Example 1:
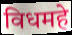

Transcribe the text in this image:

विधमहे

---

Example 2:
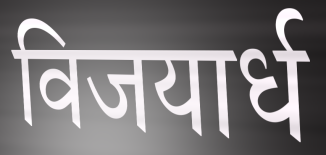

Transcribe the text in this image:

विजयार्ध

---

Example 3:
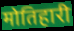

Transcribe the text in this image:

मोतिहारी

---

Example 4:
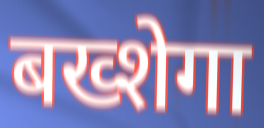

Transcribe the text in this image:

बख्शेगा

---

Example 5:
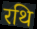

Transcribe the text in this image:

रथि